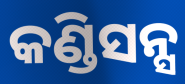
କଣ୍ଡିସନ୍ସ